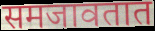
समजावतात